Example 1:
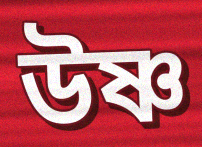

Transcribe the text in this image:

উষ্ণ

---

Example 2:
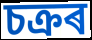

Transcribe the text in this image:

চক্ৰৰ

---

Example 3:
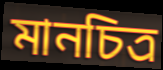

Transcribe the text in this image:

মানচিত্ৰ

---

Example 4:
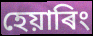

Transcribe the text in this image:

হেয়াৰিং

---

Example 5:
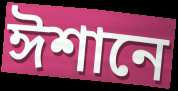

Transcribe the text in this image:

ঈশানে